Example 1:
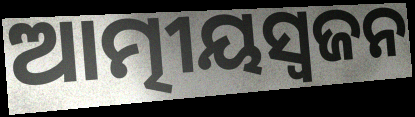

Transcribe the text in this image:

ଆତ୍ମୀୟସ୍ୱଜନ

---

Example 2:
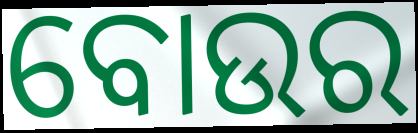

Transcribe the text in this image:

ବୋଉର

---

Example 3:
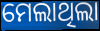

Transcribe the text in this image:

ମେଲାଥିଲା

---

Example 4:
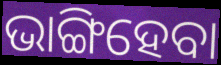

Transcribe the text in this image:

ଭାଙ୍ଗିହେବା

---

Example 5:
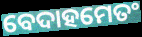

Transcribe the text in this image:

ବେଦାହମେତଂ